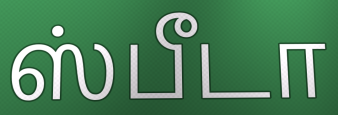
ஸ்பீடா